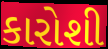
કારોશી